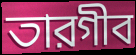
তারগীব